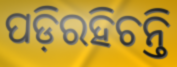
ପଡ଼ିରହିଚନ୍ତି